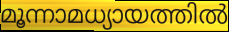
മൂന്നാമധ്യായത്തിൽ